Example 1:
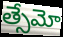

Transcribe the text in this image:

త్సేమో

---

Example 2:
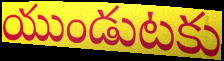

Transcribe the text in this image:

యుండుటకు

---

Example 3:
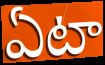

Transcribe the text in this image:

ఏటా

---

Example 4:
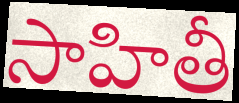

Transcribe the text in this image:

సాహితీ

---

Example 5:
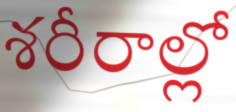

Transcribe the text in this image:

శరీరాల్లో